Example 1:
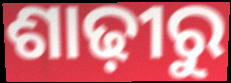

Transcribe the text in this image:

ଶାଢ଼ୀରୁ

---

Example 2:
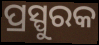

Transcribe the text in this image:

ପ୍ରସ୍ପୁରକ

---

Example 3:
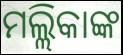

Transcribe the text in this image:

ମଲ୍ଲିକାଙ୍କ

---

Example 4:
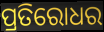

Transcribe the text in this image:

ପ୍ରତିରୋଧର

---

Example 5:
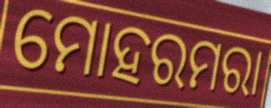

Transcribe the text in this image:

ମୋହରମରା